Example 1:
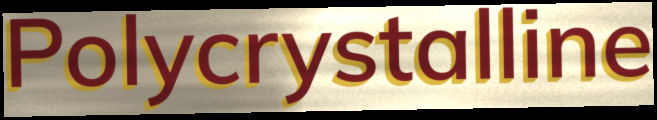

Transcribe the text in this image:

Polycrystalline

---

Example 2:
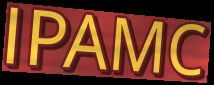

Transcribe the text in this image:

IPAMC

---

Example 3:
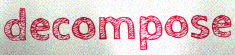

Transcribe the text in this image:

decompose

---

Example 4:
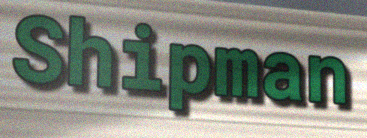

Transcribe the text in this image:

Shipman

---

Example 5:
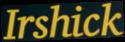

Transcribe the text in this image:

Irshick